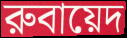
রুবায়েদ